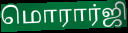
மொரார்ஜி